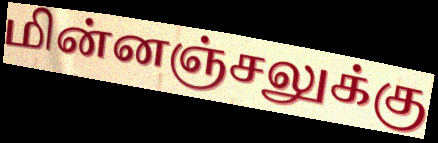
மின்னஞ்சலுக்கு